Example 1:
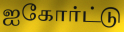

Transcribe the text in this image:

ஐகோர்ட்டு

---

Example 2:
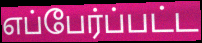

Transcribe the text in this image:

எப்பேர்ப்பட்ட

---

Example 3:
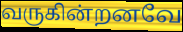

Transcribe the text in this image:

வருகின்றனவே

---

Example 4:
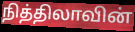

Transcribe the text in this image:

நித்திலாவின்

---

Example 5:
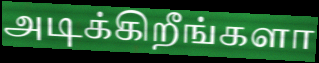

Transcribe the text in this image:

அடிக்கிறீங்களா